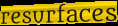
resurfaces